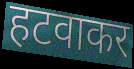
हटवाकर